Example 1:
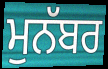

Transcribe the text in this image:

ਮੁਨੱਬਰ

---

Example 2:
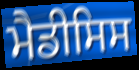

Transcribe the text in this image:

ਮੈਡੀਸਿਸ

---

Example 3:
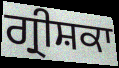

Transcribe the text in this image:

ਗ੍ਰੀਸ਼ਕਾ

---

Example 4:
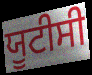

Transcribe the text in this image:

ਯੂਟੀਸੀ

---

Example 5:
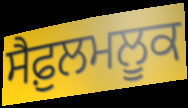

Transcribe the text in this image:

ਸੈਫ਼ੁਲਮਲੂਕ